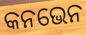
କନଭେନ